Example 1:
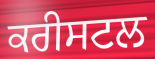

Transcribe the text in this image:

ਕਰੀਸਟਲ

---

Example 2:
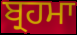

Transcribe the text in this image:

ਬ੍ਰਹਮਾ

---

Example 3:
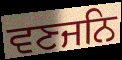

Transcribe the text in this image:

ਵਣਜਨਿ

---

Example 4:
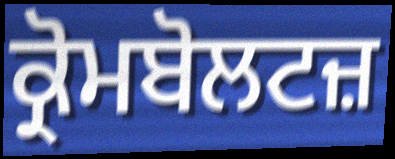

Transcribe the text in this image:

ਕ੍ਰੋਮਬੋਲਟਜ਼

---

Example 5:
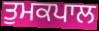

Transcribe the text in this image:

ਤੁਮਕਪਾਲ